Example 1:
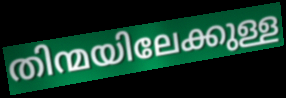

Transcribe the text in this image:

തിന്മയിലേക്കുള്ള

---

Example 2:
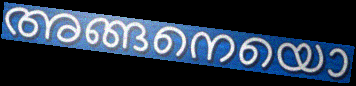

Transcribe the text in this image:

അങ്ങനെയൊ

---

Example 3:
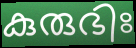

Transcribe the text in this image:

കുരുഭിഃ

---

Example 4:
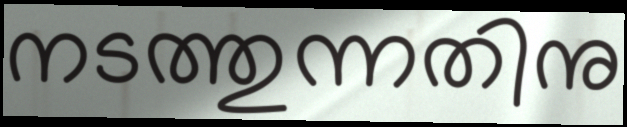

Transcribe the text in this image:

നടത്തുന്നതിനു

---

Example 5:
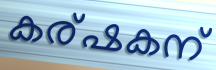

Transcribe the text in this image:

കര്ഷകന്